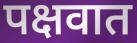
पक्षवात